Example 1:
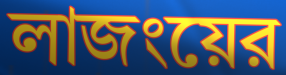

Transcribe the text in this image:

লাজংয়ের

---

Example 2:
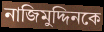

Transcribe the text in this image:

নাজিমুদ্দিনকে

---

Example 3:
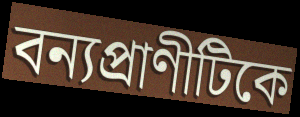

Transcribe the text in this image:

বন্যপ্রাণীটিকে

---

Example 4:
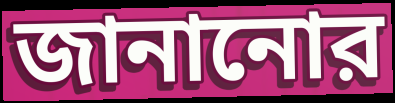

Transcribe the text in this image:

জানানোর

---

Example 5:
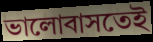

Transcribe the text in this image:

ভালোবাসতেই